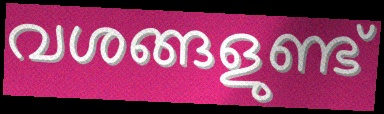
വശങ്ങളുണ്ട്